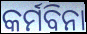
କର୍ମବିନା